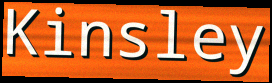
Kinsley